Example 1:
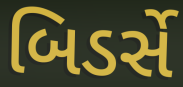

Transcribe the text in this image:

બિડર્સે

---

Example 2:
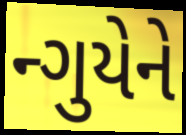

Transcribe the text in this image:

ન્ગુયેને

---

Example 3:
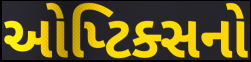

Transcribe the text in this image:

ઓપ્ટિક્સનો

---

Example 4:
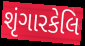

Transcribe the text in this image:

શૃંગારકેલિ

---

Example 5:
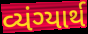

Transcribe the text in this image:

વ્યંગ્યાર્થ